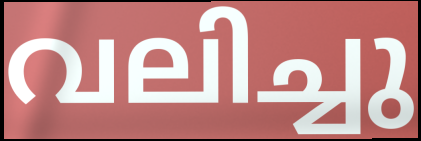
വലിച്ചു